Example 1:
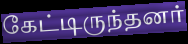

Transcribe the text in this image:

கேட்டிருந்தனர்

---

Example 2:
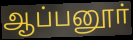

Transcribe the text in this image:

ஆப்பனூர்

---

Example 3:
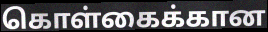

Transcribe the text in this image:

கொள்கைக்கான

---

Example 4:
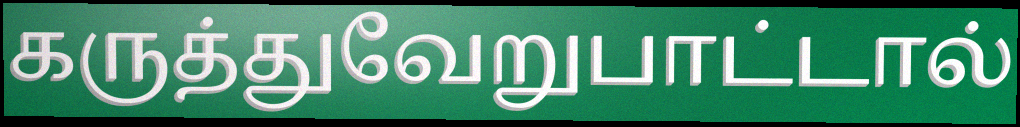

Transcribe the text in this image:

கருத்துவேறுபாட்டால்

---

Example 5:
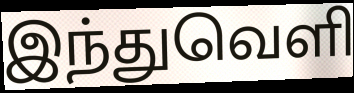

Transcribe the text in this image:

இந்துவெளி